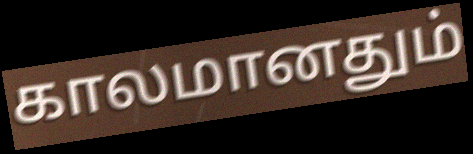
காலமானதும்